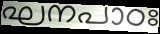
ഘനപാഠഃ